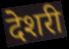
देशरी